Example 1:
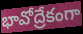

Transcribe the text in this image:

భావోద్రేకంగా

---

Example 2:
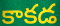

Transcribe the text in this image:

కాకడ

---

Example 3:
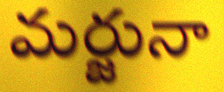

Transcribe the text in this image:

మర్జునా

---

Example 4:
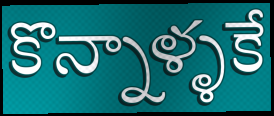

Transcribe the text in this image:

కొన్నాళ్ళకే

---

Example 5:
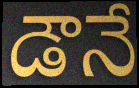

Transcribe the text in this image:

డౌనే